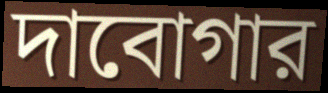
দাবোগার